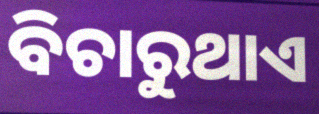
ବିଚାରୁଥାଏ